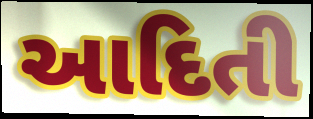
આદિતી